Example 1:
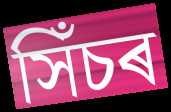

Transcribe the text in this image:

সিঁচৰ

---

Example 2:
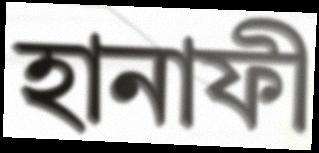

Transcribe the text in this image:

হানাফী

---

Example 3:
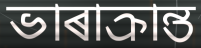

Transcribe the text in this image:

ভাৰাক্ৰান্ত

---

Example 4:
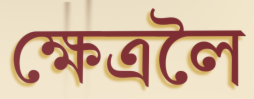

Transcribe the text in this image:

ক্ষেত্ৰলৈ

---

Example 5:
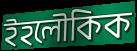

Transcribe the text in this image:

ইহলৌকিক